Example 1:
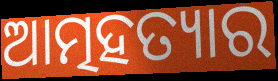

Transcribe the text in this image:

ଆତ୍ମହତ୍ୟାର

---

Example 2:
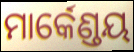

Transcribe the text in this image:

ମାର୍କେଣ୍ଡୟ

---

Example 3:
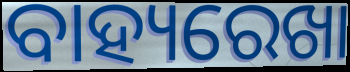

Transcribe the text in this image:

ବାହ୍ୟରେଖା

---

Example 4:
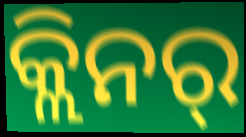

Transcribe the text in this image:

କ୍ଲିନର୍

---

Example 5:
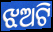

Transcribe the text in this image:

ଝଅଟି